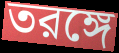
তরঙ্গে